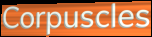
Corpuscles